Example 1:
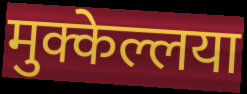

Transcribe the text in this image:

मुक्केल्लया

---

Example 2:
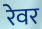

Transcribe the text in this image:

रेवर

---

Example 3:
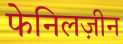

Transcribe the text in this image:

फेनिलज़ीन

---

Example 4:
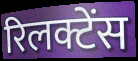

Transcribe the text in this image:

रिलक्टेंस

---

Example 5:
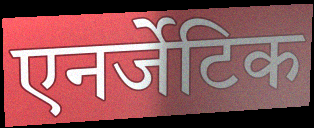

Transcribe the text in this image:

एनर्जेटिक